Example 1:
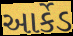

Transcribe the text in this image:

આર્કેડ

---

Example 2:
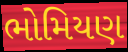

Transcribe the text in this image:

ભોમિયણ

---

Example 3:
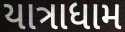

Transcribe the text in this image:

યાત્રાધામ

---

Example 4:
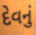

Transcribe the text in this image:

દેવનું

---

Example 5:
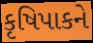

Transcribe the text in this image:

કૃષિપાકને